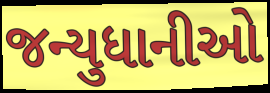
જન્યુધાનીઓ